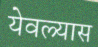
येवल्यास